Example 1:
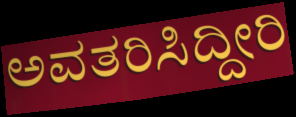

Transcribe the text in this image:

ಅವತರಿಸಿದ್ದೀರಿ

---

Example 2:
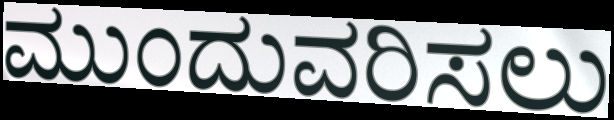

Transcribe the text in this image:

ಮುಂದುವರಿಸಲು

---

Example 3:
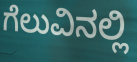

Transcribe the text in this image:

ಗೆಲುವಿನಲ್ಲಿ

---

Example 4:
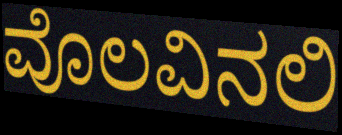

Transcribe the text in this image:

ವೊಲವಿನಲಿ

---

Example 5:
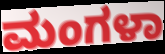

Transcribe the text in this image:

ಮಂಗಳಾ